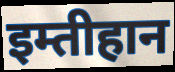
इम्तीहान